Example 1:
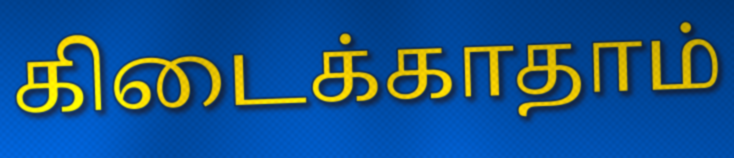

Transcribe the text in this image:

கிடைக்காதாம்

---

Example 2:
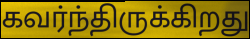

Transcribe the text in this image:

கவர்ந்திருக்கிறது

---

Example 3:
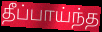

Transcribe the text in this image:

தீப்பாய்ந்த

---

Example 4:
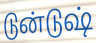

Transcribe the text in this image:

டுன்டுஷ்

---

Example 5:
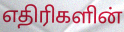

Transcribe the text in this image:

எதிரிகளின்